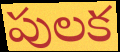
పులక